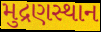
મુદ્રણસ્થાન